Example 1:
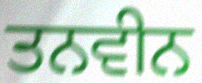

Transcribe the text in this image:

ਤਨਵੀਨ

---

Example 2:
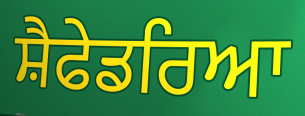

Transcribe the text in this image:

ਸ਼ੈਫੇਡਰਿਆ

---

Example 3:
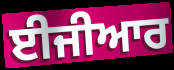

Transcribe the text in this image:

ਈਜੀਆਰ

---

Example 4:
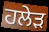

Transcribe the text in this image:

ਹਲੇੜ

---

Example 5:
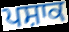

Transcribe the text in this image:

ਪਸ਼ਾਕ